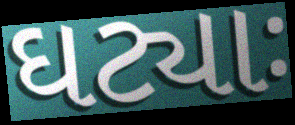
ઘટ્યાઃ